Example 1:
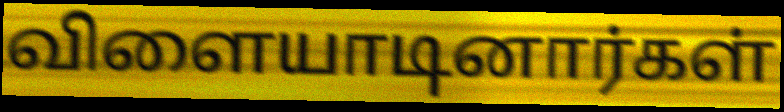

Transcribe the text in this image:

விளையாடினார்கள்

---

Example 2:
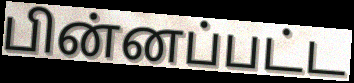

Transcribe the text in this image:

பின்னப்பட்ட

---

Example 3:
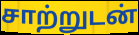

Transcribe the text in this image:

சாற்றுடன்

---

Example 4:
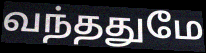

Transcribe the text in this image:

வந்ததுமே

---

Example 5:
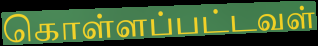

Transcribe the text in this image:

கொள்ளப்பட்டவள்